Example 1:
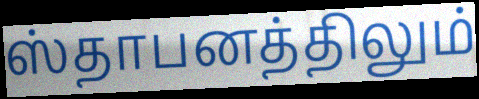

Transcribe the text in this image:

ஸ்தாபனத்திலும்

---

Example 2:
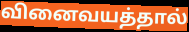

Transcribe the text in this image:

வினைவயத்தால்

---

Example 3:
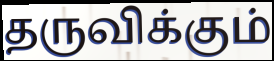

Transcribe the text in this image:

தருவிக்கும்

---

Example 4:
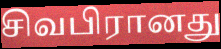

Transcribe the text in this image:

சிவபிரானது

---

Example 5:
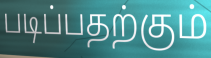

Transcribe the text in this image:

படிப்பதற்கும்